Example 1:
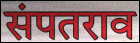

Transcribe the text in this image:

संपतराव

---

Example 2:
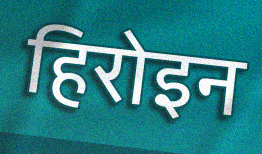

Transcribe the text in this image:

हिरोइन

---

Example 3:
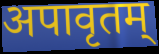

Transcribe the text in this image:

अपावृतम्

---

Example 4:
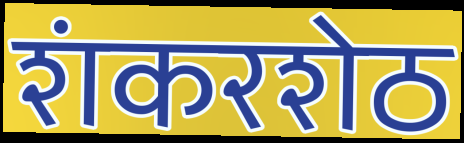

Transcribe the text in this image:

शंकरशेठ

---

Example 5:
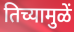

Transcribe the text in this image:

तिच्यामुळें